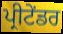
ਪ੍ਰੀਟੇਂਡਰ